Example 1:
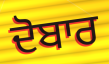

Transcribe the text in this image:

ਦੋਬਾਰ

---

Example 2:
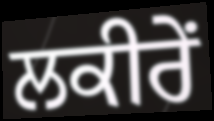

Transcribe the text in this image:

ਲਕੀਰੇਂ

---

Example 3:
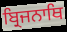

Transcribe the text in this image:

ਬ੍ਰਿਜਨਾਥਿ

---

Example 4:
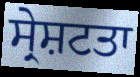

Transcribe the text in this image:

ਸ੍ਰੇਸ਼ਟਤਾ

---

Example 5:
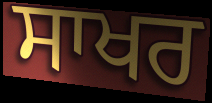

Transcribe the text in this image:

ਸਾਖਰ